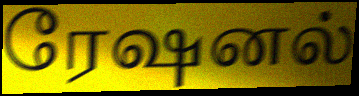
ரேஷனல்